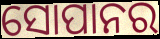
ସୋପାନର